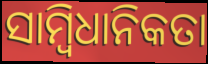
ସାମ୍ବିଧାନିକତା